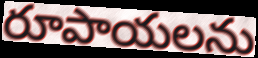
రూపాయలను